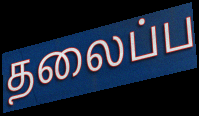
தலைப்ப